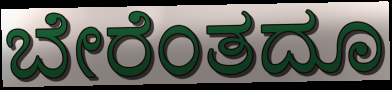
ಬೇರೆಂತದೂ